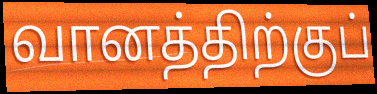
வானத்திற்குப்